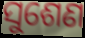
ସୁଶେଣ